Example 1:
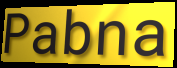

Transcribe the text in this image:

Pabna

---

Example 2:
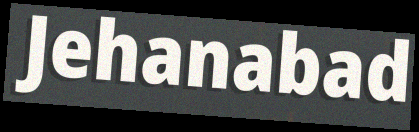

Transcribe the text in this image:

Jehanabad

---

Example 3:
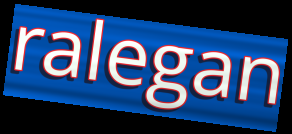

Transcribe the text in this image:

ralegan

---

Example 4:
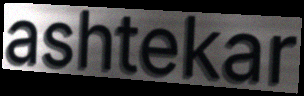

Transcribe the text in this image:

ashtekar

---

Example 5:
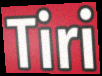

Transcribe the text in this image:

Tiri